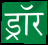
ड्रॉर